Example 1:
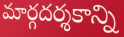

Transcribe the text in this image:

మార్గదర్శకాన్ని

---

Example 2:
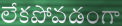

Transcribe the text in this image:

లేకపోవడంగా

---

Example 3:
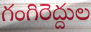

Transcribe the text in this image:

గంగిరెద్దుల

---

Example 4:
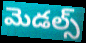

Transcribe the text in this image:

మెడల్స్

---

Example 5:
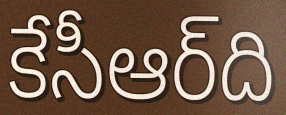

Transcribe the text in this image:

కేసీఆర్‌ది